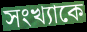
সংখ্যাকে